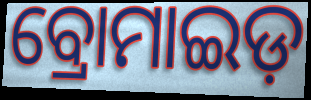
ବ୍ରୋମାଇଡ଼